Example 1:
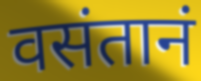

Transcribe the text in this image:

वसंतानं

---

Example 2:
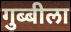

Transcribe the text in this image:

गुब्बीला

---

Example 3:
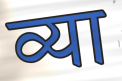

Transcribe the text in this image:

व्या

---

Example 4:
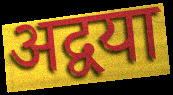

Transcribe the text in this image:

अद्वया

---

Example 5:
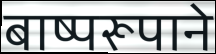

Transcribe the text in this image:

बाष्परूपाने